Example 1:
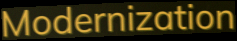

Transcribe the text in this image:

Modernization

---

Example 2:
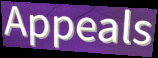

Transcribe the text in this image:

Appeals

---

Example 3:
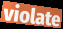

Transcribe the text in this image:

violate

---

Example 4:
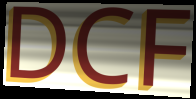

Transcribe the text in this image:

DCF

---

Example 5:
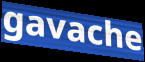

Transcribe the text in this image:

gavache